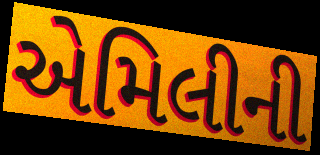
એમિલીની